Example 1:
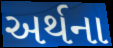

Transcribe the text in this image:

અર્થના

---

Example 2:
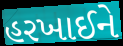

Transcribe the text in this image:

હરખાઈને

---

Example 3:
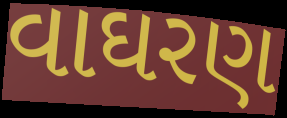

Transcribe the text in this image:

વાઘરણ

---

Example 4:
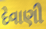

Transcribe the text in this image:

દેવાણી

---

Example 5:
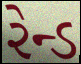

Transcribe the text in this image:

રેન્ડ